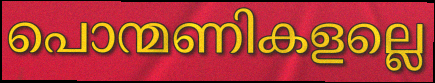
പൊന്മണികളല്ലെ